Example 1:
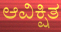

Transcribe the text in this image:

ಆವಿಕ್ಷಿತ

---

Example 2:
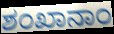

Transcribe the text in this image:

ಶಂಖಾನಾಂ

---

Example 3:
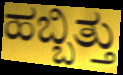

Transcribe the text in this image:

ಹಬ್ಬಿತ್ತು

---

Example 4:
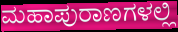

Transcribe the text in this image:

ಮಹಾಪುರಾಣಗಳಲ್ಲಿ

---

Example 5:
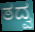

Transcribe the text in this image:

ತದ್ವ